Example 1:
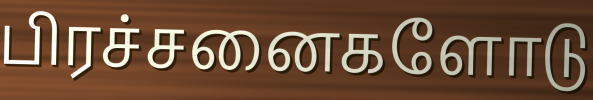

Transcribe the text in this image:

பிரச்சனைகளோடு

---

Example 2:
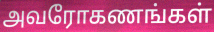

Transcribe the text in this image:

அவரோகணங்கள்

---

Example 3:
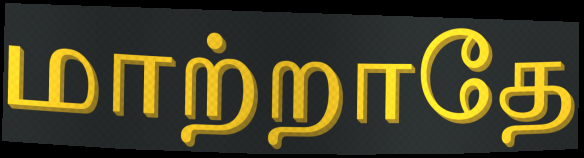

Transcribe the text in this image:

மாற்றாதே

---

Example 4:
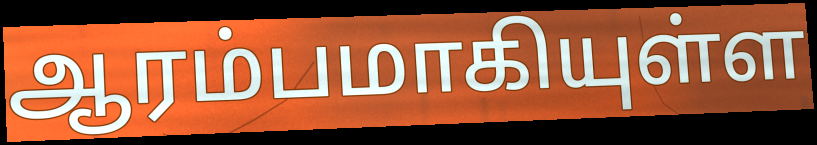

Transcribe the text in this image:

ஆரம்பமாகியுள்ள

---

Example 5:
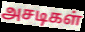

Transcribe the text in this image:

அசடிகள்